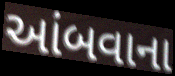
આંબવાના